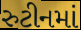
રુટીનમાં